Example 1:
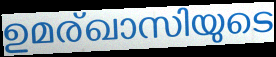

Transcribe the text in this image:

ഉമര്ഖാസിയുടെ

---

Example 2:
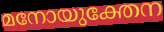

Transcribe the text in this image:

മനോയുക്തേന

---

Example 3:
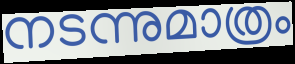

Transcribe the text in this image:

നടന്നുമാത്രം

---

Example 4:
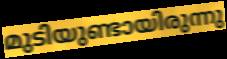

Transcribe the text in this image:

മുടിയുണ്ടായിരുന്നു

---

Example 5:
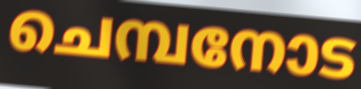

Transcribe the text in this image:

ചെമ്പനോട